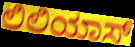
ಲಿಲಿಯಾಸ್